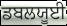
ਡਬਲਯੂਈ